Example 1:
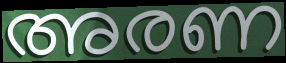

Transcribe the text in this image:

അരണ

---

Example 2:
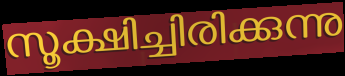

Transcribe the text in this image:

സൂക്ഷിച്ചിരിക്കുന്നു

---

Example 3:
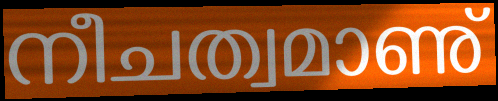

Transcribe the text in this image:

നീചത്വമാണു്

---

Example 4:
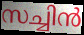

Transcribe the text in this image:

സച്ചിൻ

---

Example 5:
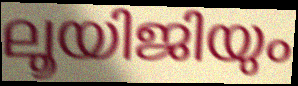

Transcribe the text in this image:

ലൂയിജിയും